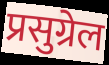
प्रसुग्रेल